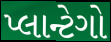
પ્લાન્ટેગો